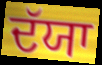
ਦੱਯਾ